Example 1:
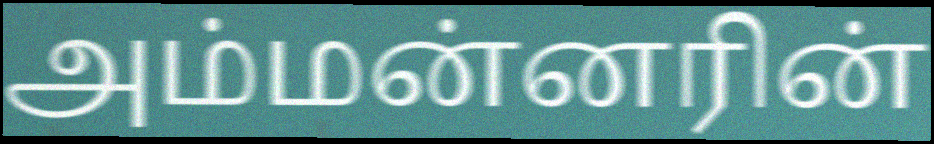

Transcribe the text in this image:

அம்மன்னரின்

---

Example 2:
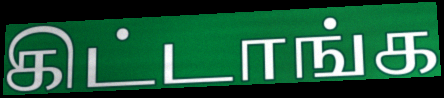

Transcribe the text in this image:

கிட்டாங்க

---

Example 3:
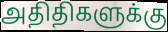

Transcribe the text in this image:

அதிதிகளுக்கு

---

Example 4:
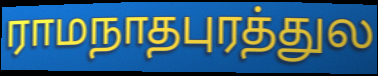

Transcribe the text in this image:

ராமநாதபுரத்துல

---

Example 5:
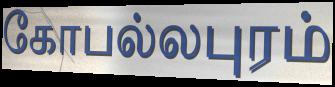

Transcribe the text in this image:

கோபல்லபுரம்